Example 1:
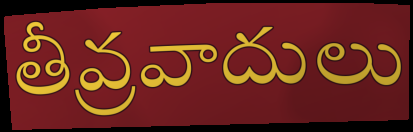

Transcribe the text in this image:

తీవ్రవాదులు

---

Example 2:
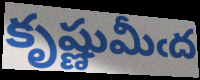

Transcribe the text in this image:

కృష్ణుమీఁద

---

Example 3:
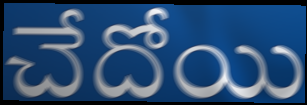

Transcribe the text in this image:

చేదోయి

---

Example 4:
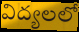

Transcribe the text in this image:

విద్యలలో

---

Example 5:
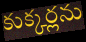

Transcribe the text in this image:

కుక్కర్లను